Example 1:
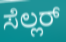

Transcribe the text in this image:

ಸೆಲ್ಲರ್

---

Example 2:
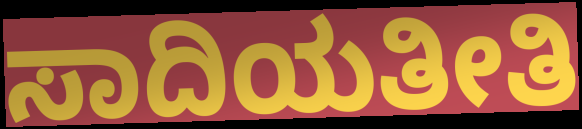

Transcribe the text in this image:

ಸಾದಿಯತೀತಿ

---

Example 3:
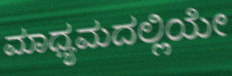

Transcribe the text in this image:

ಮಾಧ್ಯಮದಲ್ಲಿಯೇ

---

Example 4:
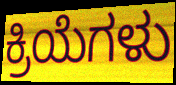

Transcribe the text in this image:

ಕ್ರಿಯೆಗಳು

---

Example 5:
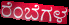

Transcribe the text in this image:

ರೆಂಬೆಗಳ